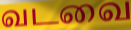
வடவை